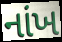
નાંખ